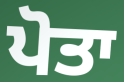
ਪੋਤਾ